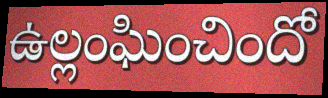
ఉల్లంఘించిందో